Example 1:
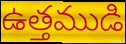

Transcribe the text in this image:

ఉత్తముడి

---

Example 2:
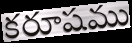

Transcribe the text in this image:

కరూషము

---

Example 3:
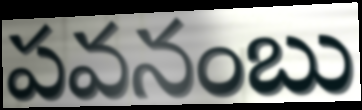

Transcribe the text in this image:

పవనంబు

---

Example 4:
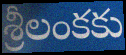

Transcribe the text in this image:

శ్రీలంకకు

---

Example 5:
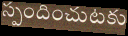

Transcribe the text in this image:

స్పందించుటకు